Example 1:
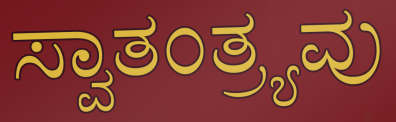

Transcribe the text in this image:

ಸ್ವಾತಂತ್ರ್ಯವು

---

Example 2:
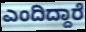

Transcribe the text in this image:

ಎಂದಿದ್ದಾರೆ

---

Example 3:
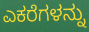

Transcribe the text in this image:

ಎಕರೆಗಳನ್ನು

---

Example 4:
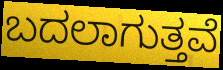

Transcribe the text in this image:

ಬದಲಾಗುತ್ತವೆ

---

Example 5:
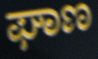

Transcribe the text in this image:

ಘಾಣ